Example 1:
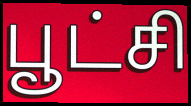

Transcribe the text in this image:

பூட்சி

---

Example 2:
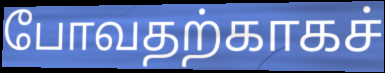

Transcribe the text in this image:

போவதற்காகச்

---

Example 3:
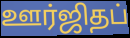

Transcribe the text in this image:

ஊர்ஜிதப்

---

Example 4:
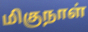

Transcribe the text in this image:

மிகுநாள்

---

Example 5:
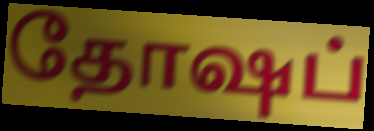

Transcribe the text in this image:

தோஷப்